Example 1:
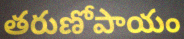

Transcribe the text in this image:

తరుణోపాయం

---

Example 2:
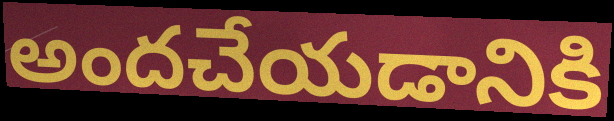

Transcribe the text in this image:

అందచేయడానికి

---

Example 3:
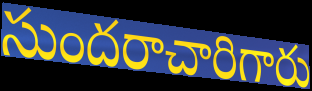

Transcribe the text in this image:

సుందరాచారిగారు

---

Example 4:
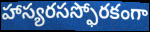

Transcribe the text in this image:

హాస్యరసస్ఫోరకంగా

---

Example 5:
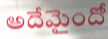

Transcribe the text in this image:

అదేమైందో